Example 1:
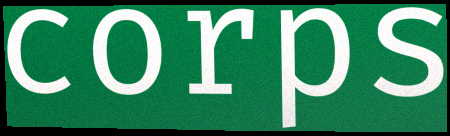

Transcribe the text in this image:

corps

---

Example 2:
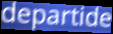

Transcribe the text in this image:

departide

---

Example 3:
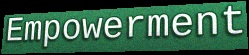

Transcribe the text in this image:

Empowerment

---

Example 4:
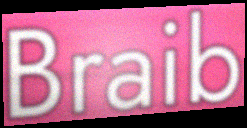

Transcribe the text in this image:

Braib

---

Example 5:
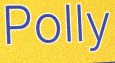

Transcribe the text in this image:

Polly